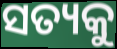
ସତ୍ୟକୁ